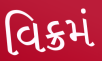
વિક્રમં